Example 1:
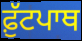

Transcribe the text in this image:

ਫ਼ੁੱਟਪਾਥ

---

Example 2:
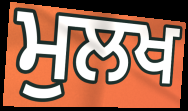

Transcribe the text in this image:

ਮੁਲਖ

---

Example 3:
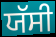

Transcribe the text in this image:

ਯੱਸੀ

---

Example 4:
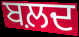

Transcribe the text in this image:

ਬਲ਼ਦ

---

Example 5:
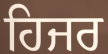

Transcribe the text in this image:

ਹਿਜਰ